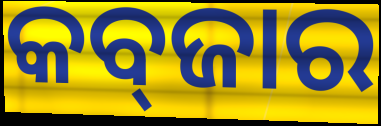
କବ୍‍ଜାର